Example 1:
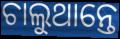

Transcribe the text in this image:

ଚାଲୁଥାନ୍ତେ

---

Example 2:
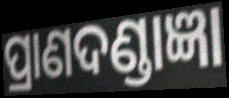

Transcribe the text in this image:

ପ୍ରାଣଦଣ୍ଡାଜ୍ଞା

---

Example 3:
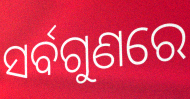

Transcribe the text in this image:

ସର୍ବଗୁଣରେ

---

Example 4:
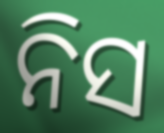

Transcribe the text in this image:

ନିସ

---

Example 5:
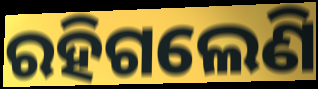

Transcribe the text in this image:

ରହିଗଲେଣି